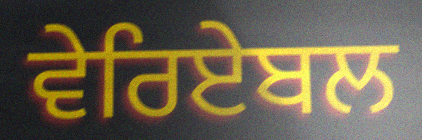
ਵੇਰਿਏਬਲ